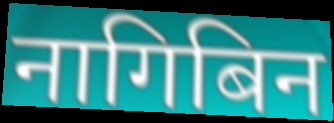
नागिबिन